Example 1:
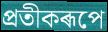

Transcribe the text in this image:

প্ৰতীকৰূপে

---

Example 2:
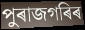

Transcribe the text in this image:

পুৰাজগৰিৰ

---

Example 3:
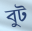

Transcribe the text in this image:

বুট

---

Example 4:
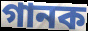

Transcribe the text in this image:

গানক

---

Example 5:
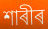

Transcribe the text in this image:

শাৰীৰ